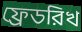
ফ্রেডরিখ